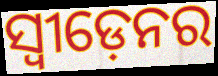
ସ୍ଵୀଡ଼େନର